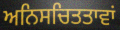
ਅਨਿਸਚਿਤਤਾਵਾਂ